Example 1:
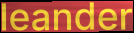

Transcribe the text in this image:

leander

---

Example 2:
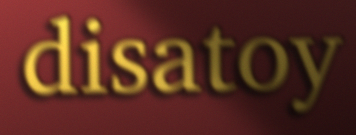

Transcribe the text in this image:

disatoy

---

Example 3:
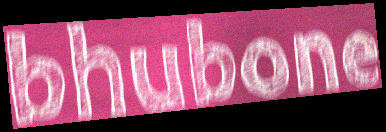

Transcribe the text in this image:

bhubone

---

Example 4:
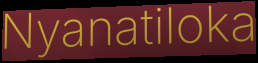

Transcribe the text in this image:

Nyanatiloka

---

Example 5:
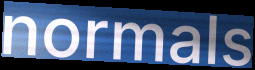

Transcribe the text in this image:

normals